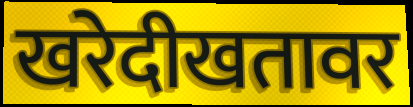
खरेदीखतावर